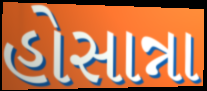
હોસાન્ના